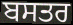
ਬਸਤਰ